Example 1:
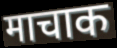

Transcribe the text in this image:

माचाक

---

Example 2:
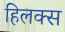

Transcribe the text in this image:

हिलक्स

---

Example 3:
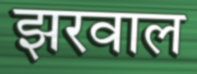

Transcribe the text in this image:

झरवाल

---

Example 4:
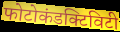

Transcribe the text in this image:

फोटोकंडक्टिविटी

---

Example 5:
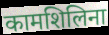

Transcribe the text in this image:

कामशिलिना